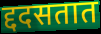
द्ददसतात